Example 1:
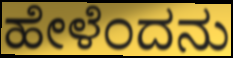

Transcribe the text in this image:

ಹೇಳೆಂದನು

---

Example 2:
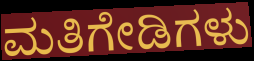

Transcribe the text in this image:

ಮತಿಗೇಡಿಗಳು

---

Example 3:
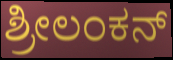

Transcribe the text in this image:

ಶ್ರೀಲಂಕನ್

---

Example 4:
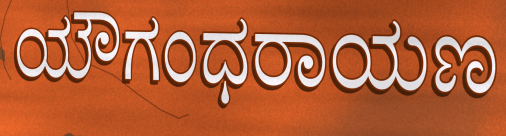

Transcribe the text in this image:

ಯೌಗಂಧರಾಯಣ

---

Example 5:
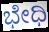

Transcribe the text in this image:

ಭೇಧಿ